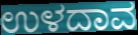
ಉಳದಾವ